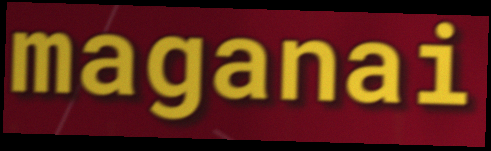
maganai